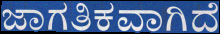
ಜಾಗತಿಕವಾಗಿದೆ